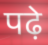
पढ़े